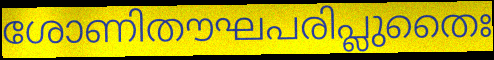
ശോണിതൗഘപരിപ്ലുതൈഃ